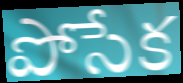
పోసేక